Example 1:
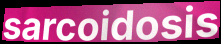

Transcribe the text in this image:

sarcoidosis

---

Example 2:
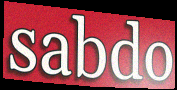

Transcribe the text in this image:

sabdo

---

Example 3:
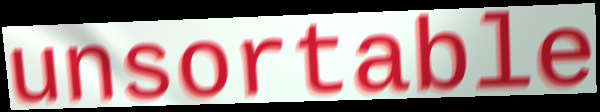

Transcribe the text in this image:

unsortable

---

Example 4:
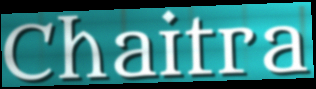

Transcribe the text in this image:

Chaitra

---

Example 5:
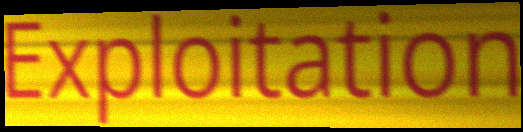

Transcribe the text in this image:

Exploitation